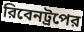
রিবেনট্রপের